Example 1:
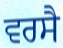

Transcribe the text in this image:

ਵਰਸੈ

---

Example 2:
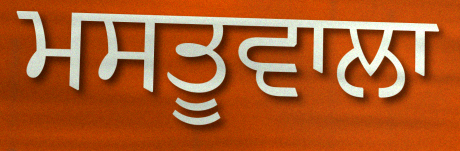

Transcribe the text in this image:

ਮਸਤੂਵਾਲਾ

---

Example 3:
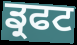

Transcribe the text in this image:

ਡ੍ਰਫਟ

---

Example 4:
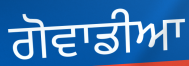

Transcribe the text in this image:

ਗੋਵਾਡੀਆ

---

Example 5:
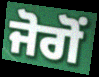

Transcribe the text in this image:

ਜੋਗੋਂ